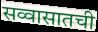
सव्वासातची